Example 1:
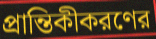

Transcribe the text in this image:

প্রান্তিকীকরণের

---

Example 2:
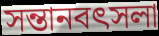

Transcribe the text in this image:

সন্তানবৎসলা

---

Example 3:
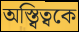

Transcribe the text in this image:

অস্ত্বিত্বকে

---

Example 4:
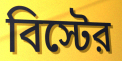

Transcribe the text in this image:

বিস্টের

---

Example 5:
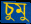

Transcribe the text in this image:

চুমু